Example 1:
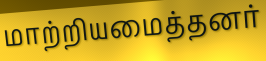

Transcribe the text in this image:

மாற்றியமைத்தனர்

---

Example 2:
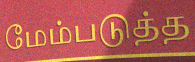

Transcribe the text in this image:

மேம்படுத்த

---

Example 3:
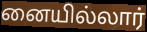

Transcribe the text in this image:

னையில்லார்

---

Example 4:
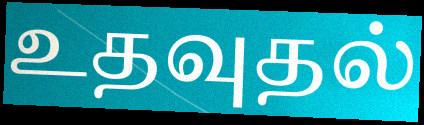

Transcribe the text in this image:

உதவுதல்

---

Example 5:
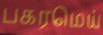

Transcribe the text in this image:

பகரமெய்